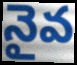
నైవ